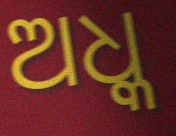
ଅଧ୍କ